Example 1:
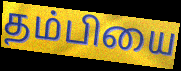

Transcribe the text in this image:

தம்பியை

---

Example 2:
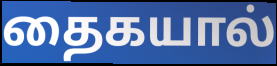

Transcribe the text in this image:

தைகயால்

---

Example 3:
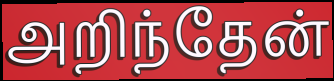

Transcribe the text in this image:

அறிந்தேன்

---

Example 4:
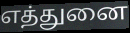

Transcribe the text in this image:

எத்துனை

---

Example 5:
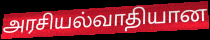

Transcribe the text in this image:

அரசியல்வாதியான